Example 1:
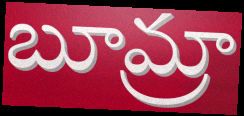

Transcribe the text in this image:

బూమ్రా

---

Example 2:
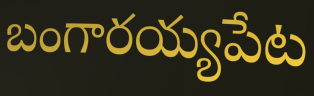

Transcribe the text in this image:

బంగారయ్యపేట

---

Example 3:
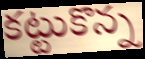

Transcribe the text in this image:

కట్టుకొన్న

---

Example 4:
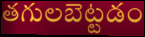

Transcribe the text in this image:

తగులబెట్టడం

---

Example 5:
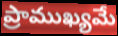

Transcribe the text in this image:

ప్రాముఖ్యమే